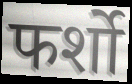
फर्शो